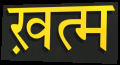
ख़त्म